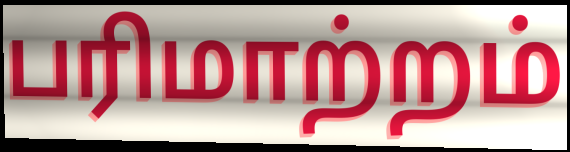
பரிமாற்றம்